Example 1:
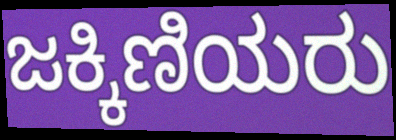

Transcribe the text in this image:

ಜಕ್ಕಿಣಿಯರು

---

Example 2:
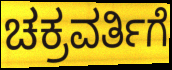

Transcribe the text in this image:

ಚಕ್ರವರ್ತಿಗೆ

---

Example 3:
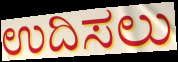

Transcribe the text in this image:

ಉದಿಸಲು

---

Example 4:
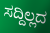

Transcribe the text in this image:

ಸದ್ದಿಲ್ಲದ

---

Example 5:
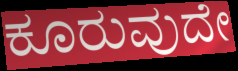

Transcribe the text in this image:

ಕೂರುವುದೇ